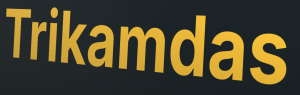
Trikamdas